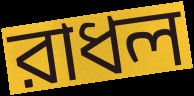
রাধল